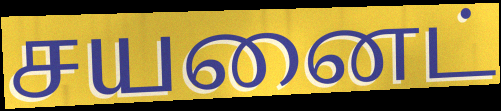
சயனைட்